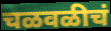
चळवळीचं